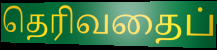
தெரிவதைப்